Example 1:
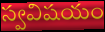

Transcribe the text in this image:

స్వవిషయం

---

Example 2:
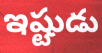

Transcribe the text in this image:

ఇష్టుడు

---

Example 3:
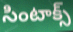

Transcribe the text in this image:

సింటాక్స్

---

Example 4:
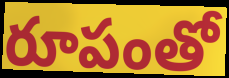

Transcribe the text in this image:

రూపంతో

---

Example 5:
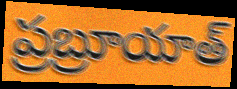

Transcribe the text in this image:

ప్రబ్రూయాత్